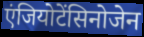
एंजियोटेंसिनोजेन